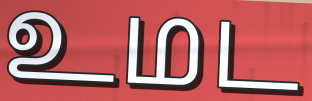
உமட